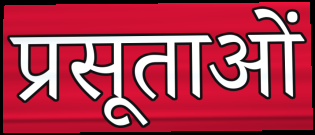
प्रसूताओं